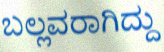
ಬಲ್ಲವರಾಗಿದ್ದು